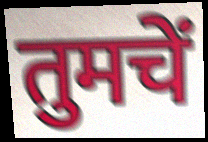
तुमचें